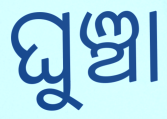
ଘୁଞ୍ଚା